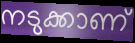
നടുക്കാണ്